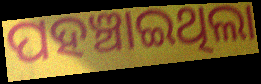
ପହଞ୍ଚାଇଥିଲା